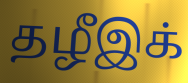
தழீஇக்